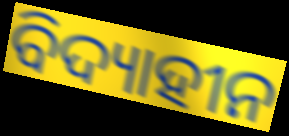
ବିଦ୍ୟାହୀନ